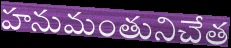
హనుమంతునిచేత